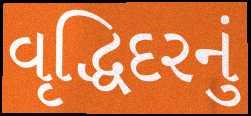
વૃદ્ધિદરનું